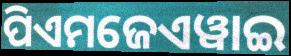
ପିଏମଜେଏୱାଇ